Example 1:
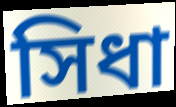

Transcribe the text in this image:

সিধা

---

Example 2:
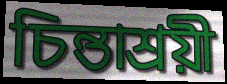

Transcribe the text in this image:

চিন্তাশ্রয়ী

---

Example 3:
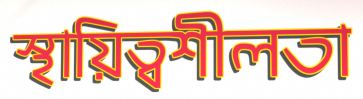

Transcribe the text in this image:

স্থায়িত্বশীলতা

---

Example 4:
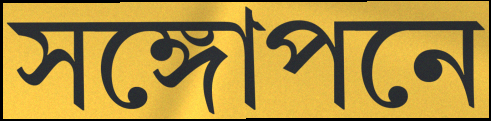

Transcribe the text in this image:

সঙ্গোপনে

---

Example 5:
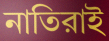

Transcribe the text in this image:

নাতিরাই